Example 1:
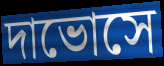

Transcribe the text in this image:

দাভোসে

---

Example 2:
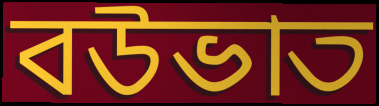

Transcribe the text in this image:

বউভাত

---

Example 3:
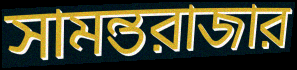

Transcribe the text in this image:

সামন্তরাজার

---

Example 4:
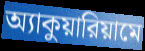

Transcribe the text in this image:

অ্যাকুয়ারিয়ামে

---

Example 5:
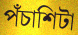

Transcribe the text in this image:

পঁচাশিটা